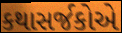
કથાસર્જકોએ